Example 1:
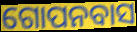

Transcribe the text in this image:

ଗୋପନବାସ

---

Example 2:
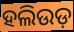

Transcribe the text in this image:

ହଲିଉଡ଼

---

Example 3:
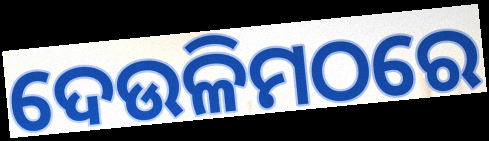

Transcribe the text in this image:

ଦେଉଳିମଠରେ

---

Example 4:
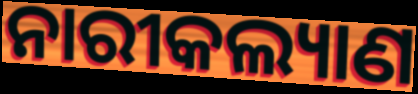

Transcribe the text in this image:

ନାରୀକଲ୍ୟାଣ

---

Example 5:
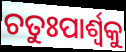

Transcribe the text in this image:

ଚତୁଃପାର୍ଶ୍ୱକୁ